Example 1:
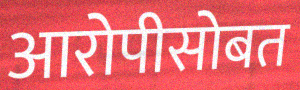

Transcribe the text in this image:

आरोपीसोबत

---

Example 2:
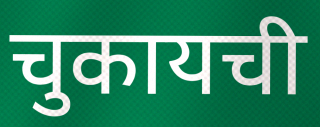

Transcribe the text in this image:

चुकायची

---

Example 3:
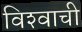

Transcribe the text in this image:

विश्वाची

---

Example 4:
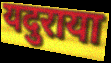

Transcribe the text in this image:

यदुराया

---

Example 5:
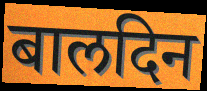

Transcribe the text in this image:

बालदिन